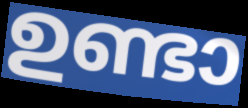
ഉണ്ടാ